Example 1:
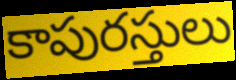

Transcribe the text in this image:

కాపురస్తులు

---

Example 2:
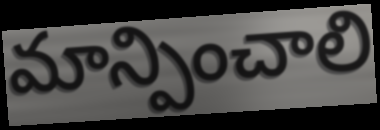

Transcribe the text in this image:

మాన్పించాలి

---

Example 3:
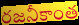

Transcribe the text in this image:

రజనీకాంత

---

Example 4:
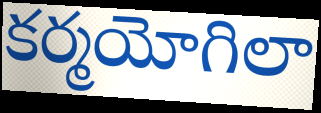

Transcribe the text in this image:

కర్మయోగిలా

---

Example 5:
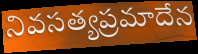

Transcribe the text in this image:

నివసత్యప్రమాదేన